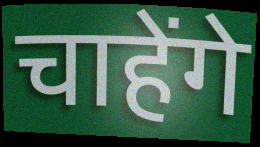
चाहेंगे